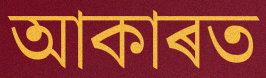
আকাৰত